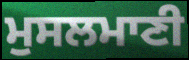
ਮੁਸਲਮਾਣੀ